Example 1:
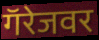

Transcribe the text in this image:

गॅरेजवर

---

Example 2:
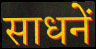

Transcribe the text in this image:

साधनें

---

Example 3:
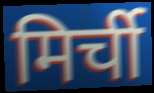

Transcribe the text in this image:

मिर्ची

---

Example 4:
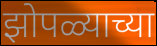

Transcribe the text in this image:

झोपळ्याच्या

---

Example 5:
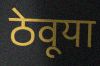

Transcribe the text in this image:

ठेवूया